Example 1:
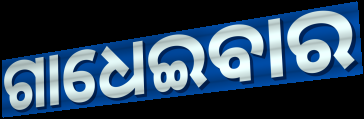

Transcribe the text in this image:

ଗାଧେଇବାର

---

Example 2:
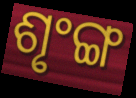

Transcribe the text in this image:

ଶୃଂଙ୍ଗ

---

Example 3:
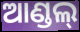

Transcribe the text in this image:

ଆଣ୍ଡଲ୍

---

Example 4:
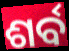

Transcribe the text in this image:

ଶର୍ବ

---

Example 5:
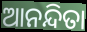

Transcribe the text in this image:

ଆନନ୍ଦିତା